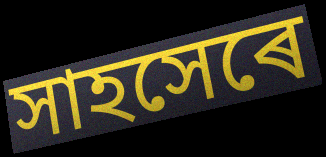
সাহসেৰে